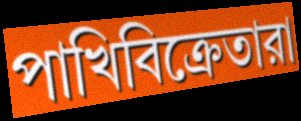
পাখিবিক্রেতারা